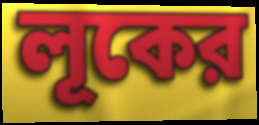
লূকের